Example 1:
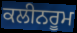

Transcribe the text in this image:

ਕਲੀਨਰੂਮ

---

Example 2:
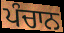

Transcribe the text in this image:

ਪੰਚਾਨ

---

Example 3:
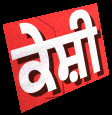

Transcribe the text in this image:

ਕੇਸ਼ੀ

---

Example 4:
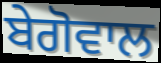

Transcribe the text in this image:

ਬੇਗੋਵਾਲ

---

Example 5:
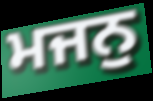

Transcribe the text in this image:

ਮਜਨੁ